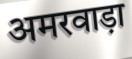
अमरवाड़ा